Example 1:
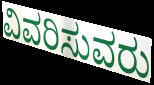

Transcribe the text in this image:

ವಿವರಿಸುವರು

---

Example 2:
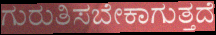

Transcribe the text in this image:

ಗುರುತಿಸಬೇಕಾಗುತ್ತದೆ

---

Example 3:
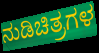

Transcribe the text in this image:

ನುಡಿಚಿತ್ರಗಳ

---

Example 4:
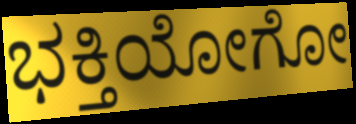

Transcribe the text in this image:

ಭಕ್ತಿಯೋಗೋ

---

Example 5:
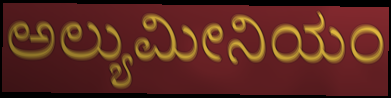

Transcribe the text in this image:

ಅಲ್ಯುಮೀನಿಯಂ